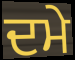
ਦਮੇ